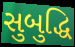
સુબુદ્ધિ